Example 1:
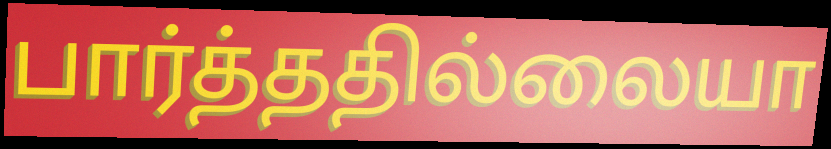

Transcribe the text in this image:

பார்த்ததில்லையா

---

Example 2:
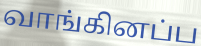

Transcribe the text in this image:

வாங்கினப்ப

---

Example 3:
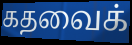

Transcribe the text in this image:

கதவைக்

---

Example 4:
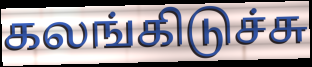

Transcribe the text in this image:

கலங்கிடுச்சு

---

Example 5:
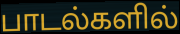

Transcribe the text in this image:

பாடல்களில்